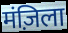
मंज़िला